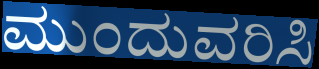
ಮುಂದುವರಿಸಿ